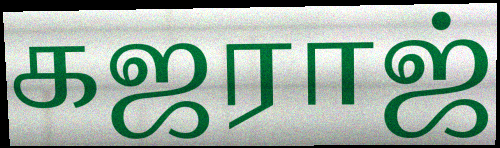
கஜராஜ்